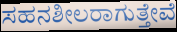
ಸಹನಶೀಲರಾಗುತ್ತೇವೆ